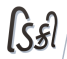
ડિક્રી